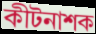
কীটনাশক